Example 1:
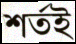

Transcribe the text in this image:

শর্তই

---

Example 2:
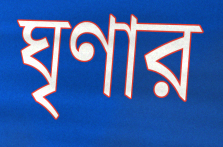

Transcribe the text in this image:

ঘৃণার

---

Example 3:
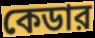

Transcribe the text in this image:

কেডার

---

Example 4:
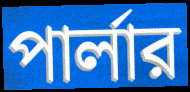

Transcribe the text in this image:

পার্লার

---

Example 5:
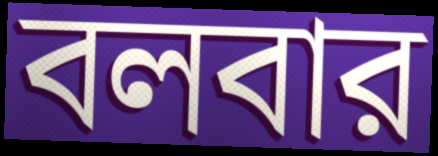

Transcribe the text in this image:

বলবার